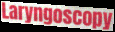
Laryngoscopy